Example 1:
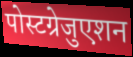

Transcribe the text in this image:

पोस्टग्रेजुएशन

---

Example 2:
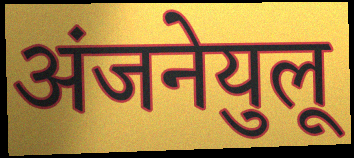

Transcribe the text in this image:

अंजनेयुलू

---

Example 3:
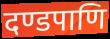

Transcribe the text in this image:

दण्डपाणि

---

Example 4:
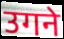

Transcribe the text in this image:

उगने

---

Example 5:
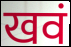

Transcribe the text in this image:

खवं